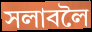
সলাবলৈ